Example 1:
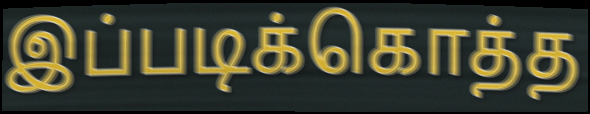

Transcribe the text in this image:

இப்படிக்கொத்த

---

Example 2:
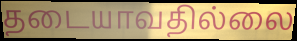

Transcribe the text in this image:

தடையாவதில்லை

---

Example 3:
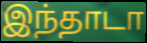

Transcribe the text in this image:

இந்தாடா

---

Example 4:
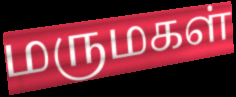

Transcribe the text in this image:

மருமகள்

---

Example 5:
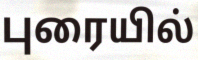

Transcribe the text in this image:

புரையில்